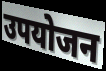
उपयोजन